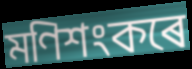
মণিশংকৰে